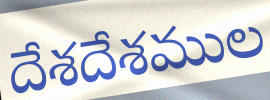
దేశదేశముల